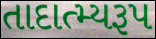
તાદાત્મ્યરૂપ